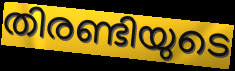
തിരണ്ടിയുടെ